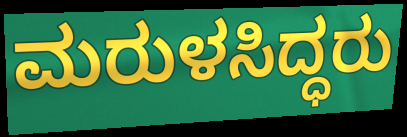
ಮರುಳಸಿದ್ಧರು